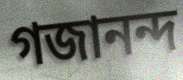
গজানন্দ